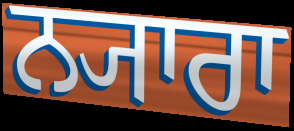
ਨ੍ਯਾਰਾ